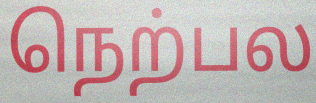
நெற்பல